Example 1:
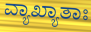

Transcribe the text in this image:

ವ್ಯಾಖ್ಯಾತಾಃ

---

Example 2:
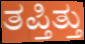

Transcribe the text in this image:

ತಪ್ತಿತ್ತು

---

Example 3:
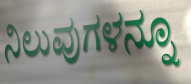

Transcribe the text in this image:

ನಿಲುವುಗಳನ್ನೂ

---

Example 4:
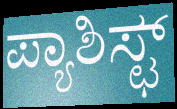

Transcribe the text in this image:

ಪ್ಯಾಶಿಸ್ಟ್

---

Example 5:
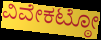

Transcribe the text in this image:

ವಿವೇಕಟ್ಠೋ